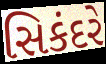
સિકંદરે